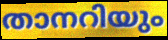
താനറിയും